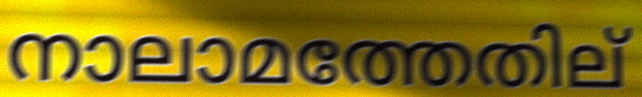
നാലാമത്തേതില്